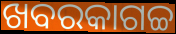
ଖବରକାଗଚ୍ଚ